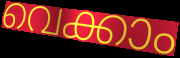
വെക്കാം